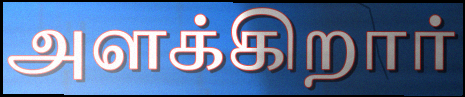
அளக்கிறார்